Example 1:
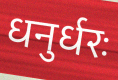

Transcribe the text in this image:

धनुर्धरः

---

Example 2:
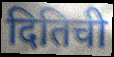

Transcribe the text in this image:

दितिची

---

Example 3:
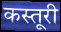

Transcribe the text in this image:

कस्तूरी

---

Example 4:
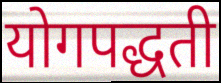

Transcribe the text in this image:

योगपद्धती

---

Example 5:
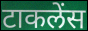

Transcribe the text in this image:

टाकलेंस